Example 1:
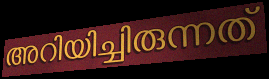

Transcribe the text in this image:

അറിയിച്ചിരുന്നത്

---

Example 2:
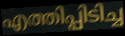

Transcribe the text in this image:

എത്തിപ്പിടിച്ച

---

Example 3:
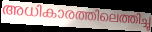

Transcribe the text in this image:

അധികാരത്തിലെത്തിച്ചു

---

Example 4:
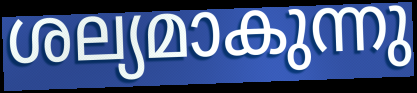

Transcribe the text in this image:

ശല്യമാകുന്നു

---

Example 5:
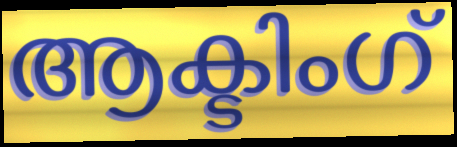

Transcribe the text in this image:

ആക്ടിംഗ്